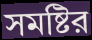
সমষ্টির